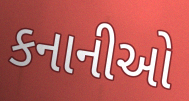
કનાનીઓ